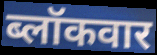
ब्लॉकवार